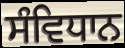
ਸੰਵਿਧਾਨ